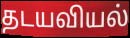
தடயவியல்